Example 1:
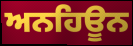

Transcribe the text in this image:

ਅਨਹਿਊਨ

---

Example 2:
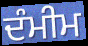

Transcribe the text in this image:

ਦੰਮੀਮ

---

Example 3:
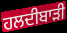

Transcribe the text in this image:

ਹਲਦੀਬਾੜੀ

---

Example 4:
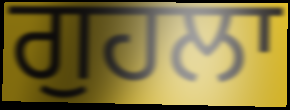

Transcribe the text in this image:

ਗੁਹਲਾ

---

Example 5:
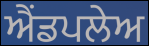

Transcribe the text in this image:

ਐਂਡਪਲੇਅ